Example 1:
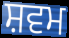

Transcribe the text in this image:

ਸ਼ਵਮ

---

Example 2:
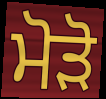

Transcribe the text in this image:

ਮੋੜੋ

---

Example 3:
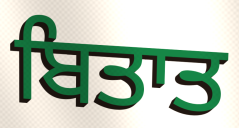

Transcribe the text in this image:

ਬਿਤਾਤ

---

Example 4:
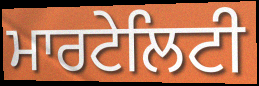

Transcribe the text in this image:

ਮਾਰਟੇਲਿਟੀ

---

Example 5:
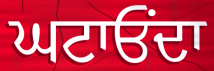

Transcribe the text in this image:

ਘਟਾਓਂਦਾ